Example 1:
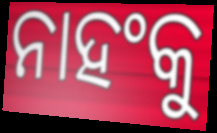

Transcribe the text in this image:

ନାହଂକୁ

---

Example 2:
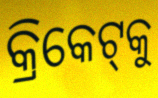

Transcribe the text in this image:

କ୍ରିକେଟ୍‌କୁ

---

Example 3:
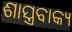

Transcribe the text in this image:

ଶାସ୍ତ୍ରବାକ୍ୟ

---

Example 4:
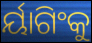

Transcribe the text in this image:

ର୍ୟାଗିଂକୁ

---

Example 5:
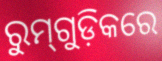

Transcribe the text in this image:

ରୁମ୍‌ଗୁଡ଼ିକରେ